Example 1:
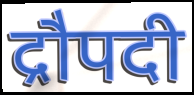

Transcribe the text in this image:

द्रौपदी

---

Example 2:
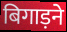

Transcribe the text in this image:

बिगाड़ने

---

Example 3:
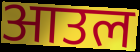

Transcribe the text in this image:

आउल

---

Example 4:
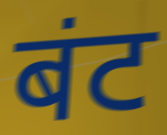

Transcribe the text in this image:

बंट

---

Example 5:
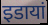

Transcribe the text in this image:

इडायां